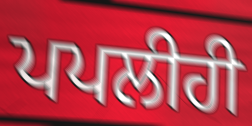
ਪਪਲੀਹੀ